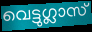
വെട്ടുഗ്ലാസ്